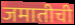
जमातीची